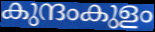
കുന്ദംകുളം